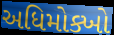
અધિમોક્ખો